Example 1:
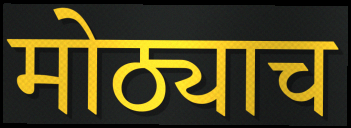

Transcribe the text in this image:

मोठ्याच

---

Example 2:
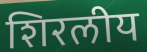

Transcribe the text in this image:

शिरलीय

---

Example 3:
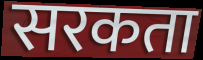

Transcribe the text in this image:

सरकता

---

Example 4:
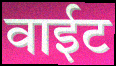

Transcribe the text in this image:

वाईट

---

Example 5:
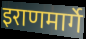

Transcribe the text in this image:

इराणमार्गे